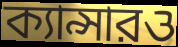
ক্যান্সারও